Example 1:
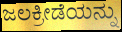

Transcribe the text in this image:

ಜಲಕ್ರೀಡೆಯನ್ನು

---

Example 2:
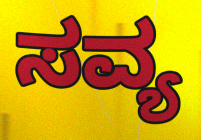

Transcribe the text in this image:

ಸವ್ಯ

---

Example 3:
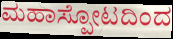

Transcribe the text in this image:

ಮಹಾಸ್ಪೋಟದಿಂದ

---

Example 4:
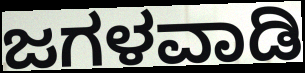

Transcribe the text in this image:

ಜಗಳವಾಡಿ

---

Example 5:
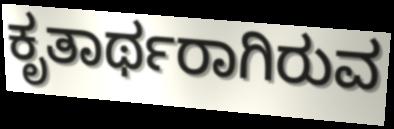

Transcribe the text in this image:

ಕೃತಾರ್ಥರಾಗಿರುವ